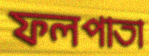
ফলপাতা